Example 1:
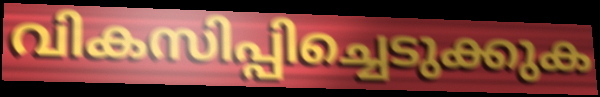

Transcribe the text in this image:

വികസിപ്പിച്ചെടുക്കുക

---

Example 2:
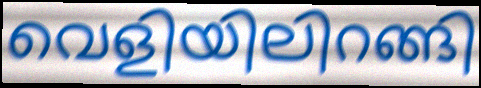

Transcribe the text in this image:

വെളിയിലിറങ്ങി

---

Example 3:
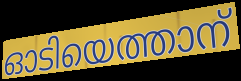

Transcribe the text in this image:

ഓടിയെത്താന്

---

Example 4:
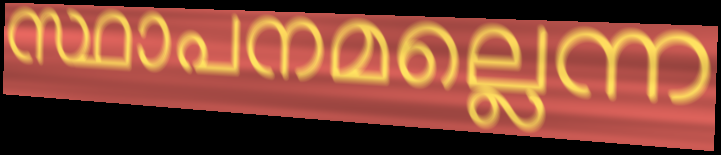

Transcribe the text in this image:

സ്ഥാപനമല്ലെന്ന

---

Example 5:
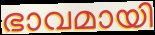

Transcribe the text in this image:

ഭാവമായി